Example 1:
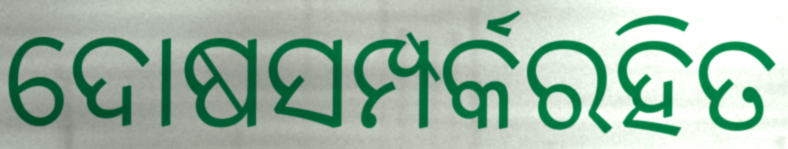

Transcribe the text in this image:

ଦୋଷସମ୍ପର୍କରହିତ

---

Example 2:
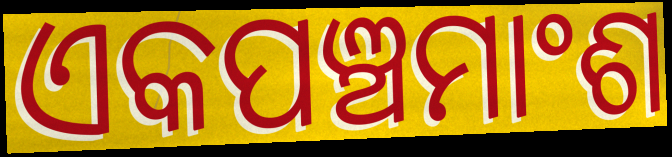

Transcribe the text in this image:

ଏକପଞ୍ଚମାଂଶ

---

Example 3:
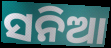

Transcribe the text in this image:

ସନିଆ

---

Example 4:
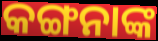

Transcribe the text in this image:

କଙ୍ଗନାଙ୍କ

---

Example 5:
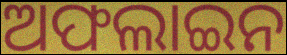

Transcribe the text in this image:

ଅଫଲାଇନ